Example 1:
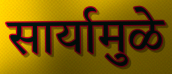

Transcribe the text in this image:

सार्यामुळे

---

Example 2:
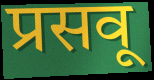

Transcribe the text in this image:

प्रसवू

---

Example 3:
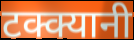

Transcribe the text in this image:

टक्क्यानी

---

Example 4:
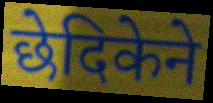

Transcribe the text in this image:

छेदिकेने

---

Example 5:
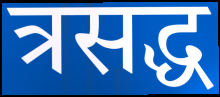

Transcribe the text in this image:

त्रसद्ध